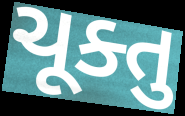
ચૂક્તુ